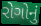
રોગોનું